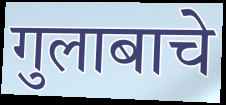
गुलाबाचे